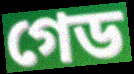
গেড